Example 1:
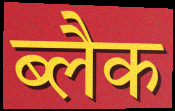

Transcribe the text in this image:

ब्‍लैक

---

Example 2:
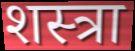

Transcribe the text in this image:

शस्त्रा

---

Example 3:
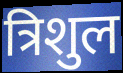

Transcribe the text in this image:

त्रिशुल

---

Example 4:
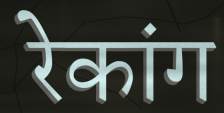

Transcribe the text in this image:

रेकांग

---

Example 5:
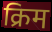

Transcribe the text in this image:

क्रिम